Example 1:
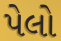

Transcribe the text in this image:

પેલો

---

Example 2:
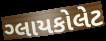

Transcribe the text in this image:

ગ્લાયકોલેટ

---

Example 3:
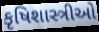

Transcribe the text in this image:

કૃષિશાસ્ત્રીઓ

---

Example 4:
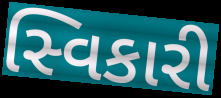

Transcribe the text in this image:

સ્વિકારી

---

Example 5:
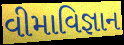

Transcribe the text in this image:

વીમાવિજ્ઞાન